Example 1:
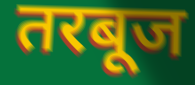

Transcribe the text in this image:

तरबूज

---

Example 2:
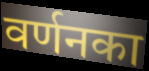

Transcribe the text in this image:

वर्णनका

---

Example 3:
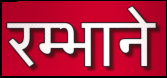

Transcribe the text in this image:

रम्भाने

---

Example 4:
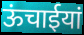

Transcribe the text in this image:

ऊंचाईयां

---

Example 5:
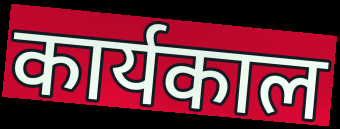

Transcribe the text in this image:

कार्यकाल